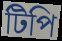
টিপি